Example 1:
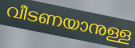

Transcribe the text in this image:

വീടണയാനുള്ള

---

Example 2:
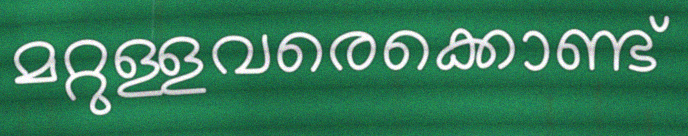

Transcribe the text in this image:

മറ്റുള്ളവരെക്കൊണ്ട്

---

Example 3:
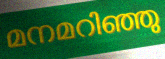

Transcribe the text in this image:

മനമറിഞ്ഞു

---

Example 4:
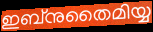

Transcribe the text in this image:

ഇബ്നുതൈമിയ്യ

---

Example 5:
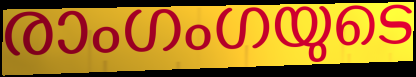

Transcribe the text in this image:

രാംഗംഗയുടെ